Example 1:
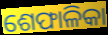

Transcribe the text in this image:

ଶେଫାଳିକା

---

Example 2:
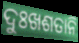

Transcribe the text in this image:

ଦୁଃଖଶତାନି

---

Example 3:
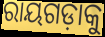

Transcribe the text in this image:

ରାୟଗଡ଼ାକୁ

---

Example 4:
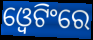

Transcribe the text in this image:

ଓ୍ୱେଟିଂରେ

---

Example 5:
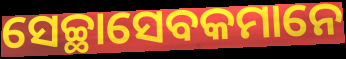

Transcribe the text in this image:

ସେଚ୍ଛାସେବକମାନେ